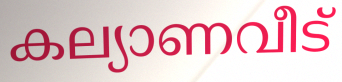
കല്യാണവീട്